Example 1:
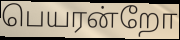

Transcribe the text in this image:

பெயரன்றோ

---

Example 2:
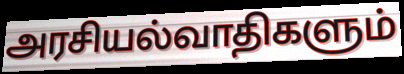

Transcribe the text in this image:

அரசியல்வாதிகளும்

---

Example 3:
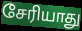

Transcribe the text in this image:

சேரியாது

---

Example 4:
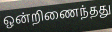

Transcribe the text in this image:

ஒன்றிணைந்தது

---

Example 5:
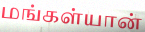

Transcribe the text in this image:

மங்கள்யான்